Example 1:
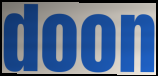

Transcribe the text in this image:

doon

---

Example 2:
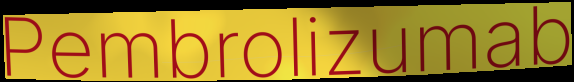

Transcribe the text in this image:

Pembrolizumab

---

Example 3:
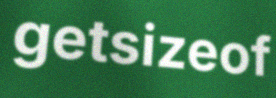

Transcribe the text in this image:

getsizeof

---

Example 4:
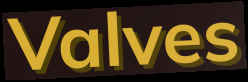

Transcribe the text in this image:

Valves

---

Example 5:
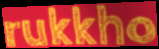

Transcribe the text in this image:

rukkho